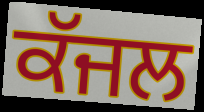
ਕੱਜਲ